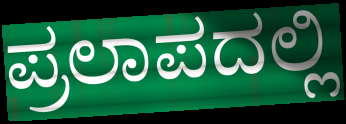
ಪ್ರಲಾಪದಲ್ಲಿ